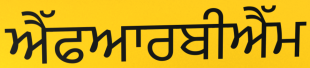
ਐੱਫਆਰਬੀਐੱਮ